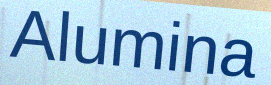
Alumina